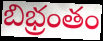
బిభ్రంతం